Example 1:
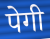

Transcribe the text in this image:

पेगी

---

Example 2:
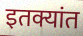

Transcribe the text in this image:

इतक्यांत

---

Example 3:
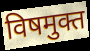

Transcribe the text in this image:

विषमुक्त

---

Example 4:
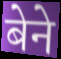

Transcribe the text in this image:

बेने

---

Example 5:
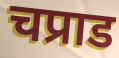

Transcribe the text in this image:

चप्राड